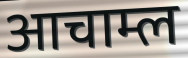
आचाम्ल